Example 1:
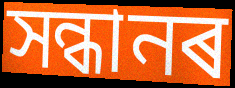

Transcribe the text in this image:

সন্ধানৰ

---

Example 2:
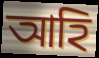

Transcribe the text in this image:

আহি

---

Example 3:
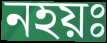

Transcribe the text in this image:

নহয়ঃ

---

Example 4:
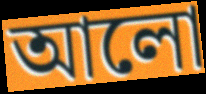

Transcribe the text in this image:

আলো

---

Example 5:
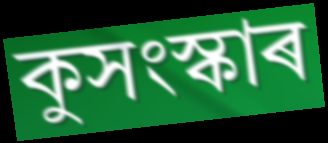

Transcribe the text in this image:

কুসংস্কাৰ